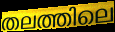
തലത്തിലെ